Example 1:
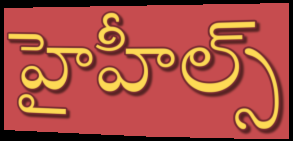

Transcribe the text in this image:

హైహీల్స్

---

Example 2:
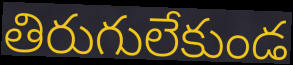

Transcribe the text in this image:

తిరుగులేకుండ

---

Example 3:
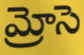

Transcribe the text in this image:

మ్రోసె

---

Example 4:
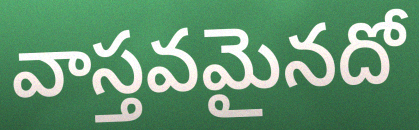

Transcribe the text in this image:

వాస్తవమైనదో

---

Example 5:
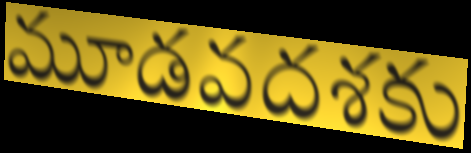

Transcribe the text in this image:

మూడవదశకు